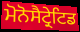
ਮੋਨੋਸੈਟ੍ਰੇਟਿਡ